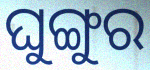
ଘୁଙ୍ଗୁର